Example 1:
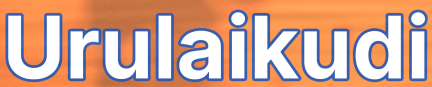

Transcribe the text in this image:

Urulaikudi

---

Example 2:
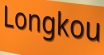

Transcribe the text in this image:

Longkou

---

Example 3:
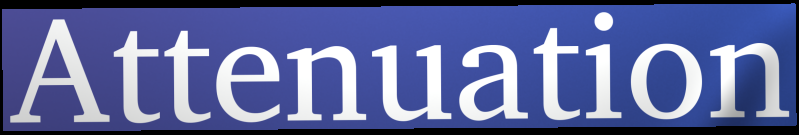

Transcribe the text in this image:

Attenuation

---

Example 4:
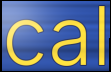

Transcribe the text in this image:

cal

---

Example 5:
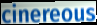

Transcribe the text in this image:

cinereous